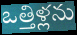
ఒత్తిళ్లను